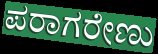
ಪರಾಗರೇಣು